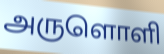
அருளொளி